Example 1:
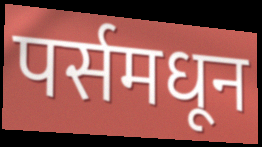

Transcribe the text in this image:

पर्समधून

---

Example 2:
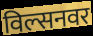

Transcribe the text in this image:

विल्सनवर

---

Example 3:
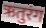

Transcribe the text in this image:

ऋतुरंग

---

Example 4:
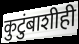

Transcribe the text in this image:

कुटुंबाशीही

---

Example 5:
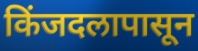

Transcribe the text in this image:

किंजदलापासून